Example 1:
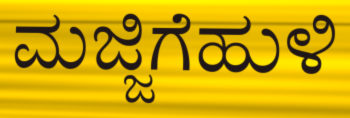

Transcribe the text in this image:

ಮಜ್ಜಿಗೆಹುಳಿ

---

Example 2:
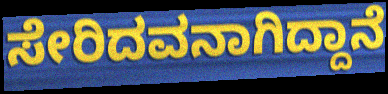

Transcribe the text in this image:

ಸೇರಿದವನಾಗಿದ್ದಾನೆ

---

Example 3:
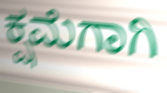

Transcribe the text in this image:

ಕ್ಷಮೆಗಾಗಿ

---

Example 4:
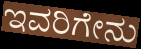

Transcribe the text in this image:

ಇವರಿಗೇನು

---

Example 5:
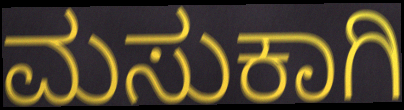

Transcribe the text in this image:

ಮಸುಕಾಗಿ